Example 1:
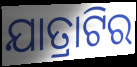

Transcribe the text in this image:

ଯାତ୍ରାଟିର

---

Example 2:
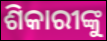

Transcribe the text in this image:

ଶିକାରୀଙ୍କୁ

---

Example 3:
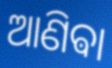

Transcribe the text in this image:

ଆଣିଵା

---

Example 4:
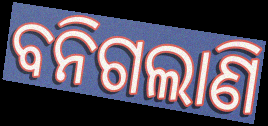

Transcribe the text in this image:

ବନିଗଲାଣି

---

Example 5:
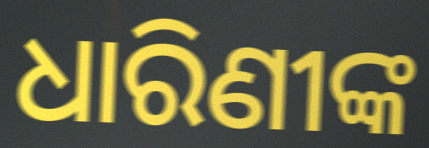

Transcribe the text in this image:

ଧାରିଣୀଙ୍କ